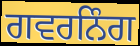
ਗਵਰਨਿੰਗ